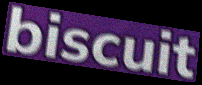
biscuit